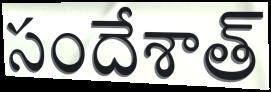
సందేశాత్